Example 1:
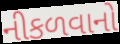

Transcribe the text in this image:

નીકળવાનો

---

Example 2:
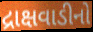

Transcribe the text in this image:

દ્રાક્ષવાડીનો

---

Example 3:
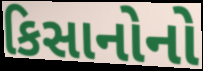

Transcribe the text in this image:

કિસાનોનો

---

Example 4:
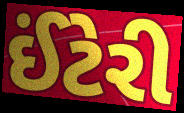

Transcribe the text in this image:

ઈંટેરી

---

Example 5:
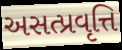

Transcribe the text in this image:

અસત્પ્રવૃત્તિ